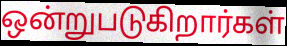
ஒன்றுபடுகிறார்கள்